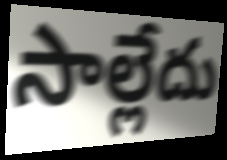
సాల్లేదు